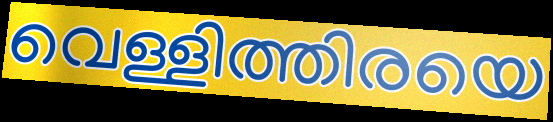
വെള്ളിത്തിരയെ